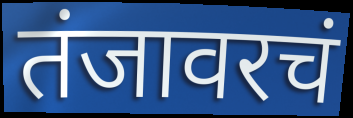
तंजावरचं